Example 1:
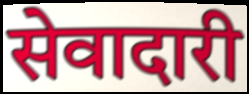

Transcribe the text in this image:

सेवादारी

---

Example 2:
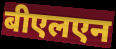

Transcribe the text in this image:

बीएलएन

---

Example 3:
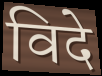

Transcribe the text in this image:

विदे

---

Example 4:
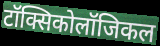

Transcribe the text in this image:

टॉक्सिकोलॉजिकल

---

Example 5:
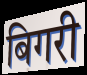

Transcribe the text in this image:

बिगरी